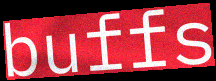
buffs